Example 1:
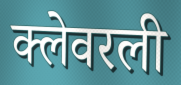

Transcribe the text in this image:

क्लेवरली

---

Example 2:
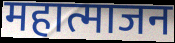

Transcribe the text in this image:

महात्माजन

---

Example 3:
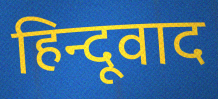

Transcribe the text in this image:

हिन्दूवाद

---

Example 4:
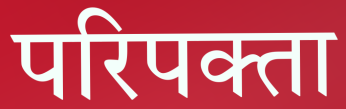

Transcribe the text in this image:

परिपक्ता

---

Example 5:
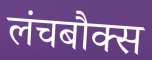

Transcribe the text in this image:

लंचबौक्स